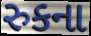
રુકના